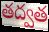
తద్వత